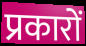
प्रकारों